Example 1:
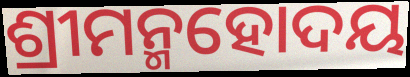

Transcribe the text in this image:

ଶ୍ରୀମନ୍ମହୋଦୟ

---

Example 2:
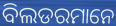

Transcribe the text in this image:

ବିଲଡରମାନେ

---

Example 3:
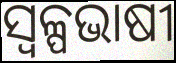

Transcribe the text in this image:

ସ୍ୱଳ୍ପଭାଷୀ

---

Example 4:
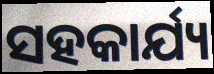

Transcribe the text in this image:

ସହକାର୍ଯ୍ୟ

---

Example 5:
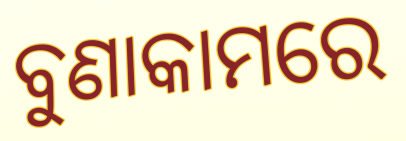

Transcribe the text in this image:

ବୁଣାକାମରେ